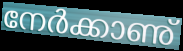
നേർക്കാണു്